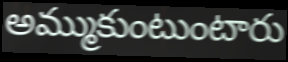
అమ్ముకుంటుంటారు